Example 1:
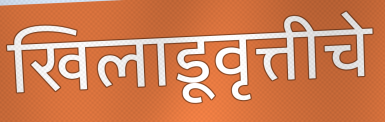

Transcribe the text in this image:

खिलाडूवृत्तीचे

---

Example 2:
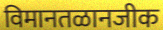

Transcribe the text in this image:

विमानतळानजीक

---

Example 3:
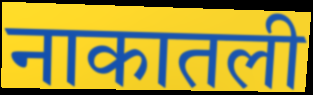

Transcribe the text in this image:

नाकातली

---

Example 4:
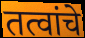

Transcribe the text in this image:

तत्वांचे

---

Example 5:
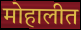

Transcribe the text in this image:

मोहालीत